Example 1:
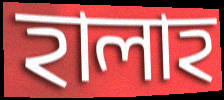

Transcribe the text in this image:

হালাহ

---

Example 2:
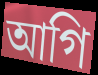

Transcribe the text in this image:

আগি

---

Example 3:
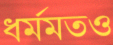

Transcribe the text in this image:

ধর্মমতও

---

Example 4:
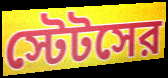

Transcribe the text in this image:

স্টেটসের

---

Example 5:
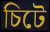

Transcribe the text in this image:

চিটে